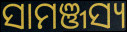
ସାମଞ୍ଜସ୍ୟ